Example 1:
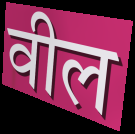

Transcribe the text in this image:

वील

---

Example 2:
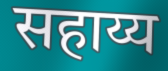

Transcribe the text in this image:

सहाय्य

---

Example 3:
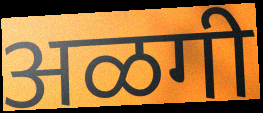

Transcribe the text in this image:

अळगी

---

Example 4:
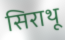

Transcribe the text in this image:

सिराथू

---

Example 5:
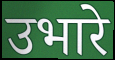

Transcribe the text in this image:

उभारे